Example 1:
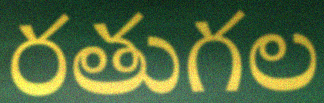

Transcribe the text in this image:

రతుగల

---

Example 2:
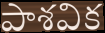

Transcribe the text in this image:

పాశవిక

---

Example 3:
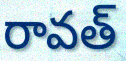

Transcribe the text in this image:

రావత్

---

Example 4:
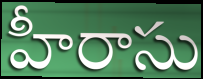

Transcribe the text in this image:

హీరాసు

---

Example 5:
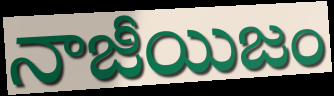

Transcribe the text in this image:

నాజీయిజం